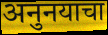
अनुनयाचा